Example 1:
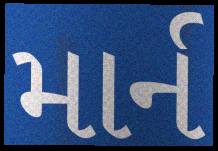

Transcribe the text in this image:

માર્ન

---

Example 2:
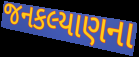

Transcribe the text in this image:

જનકલ્યાણના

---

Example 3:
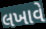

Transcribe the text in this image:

લખાવે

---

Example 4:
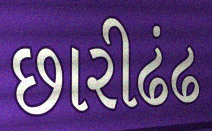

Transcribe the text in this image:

છારીઢંઢ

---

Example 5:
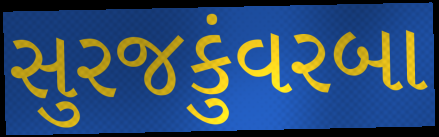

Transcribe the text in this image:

સુરજકુંવરબા